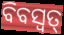
ବିବସ୍ଵତ୍